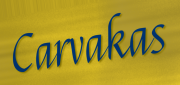
Carvakas